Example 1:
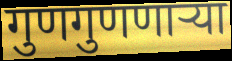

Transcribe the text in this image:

गुणगुणणाऱ्या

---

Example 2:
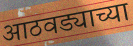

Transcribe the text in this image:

आठवड्याच्या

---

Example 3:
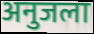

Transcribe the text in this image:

अनुजला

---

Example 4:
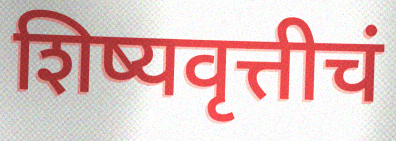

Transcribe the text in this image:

शिष्यवृत्तीचं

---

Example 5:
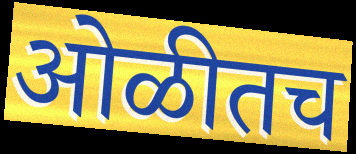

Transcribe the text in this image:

ओळीतच